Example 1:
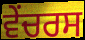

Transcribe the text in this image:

ਵੇਂਚਰਸ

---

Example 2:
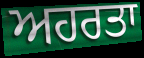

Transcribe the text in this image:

ਅਹਰਤਾ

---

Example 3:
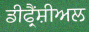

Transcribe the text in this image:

ਡੀਫ੍ਰੈਂਸ਼ੀਅਲ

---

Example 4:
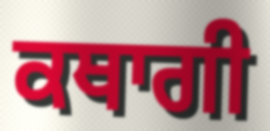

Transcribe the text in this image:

ਕਥਾਗੀ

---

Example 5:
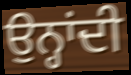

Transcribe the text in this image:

ਉਨ੍ਹਾਂਦੀ